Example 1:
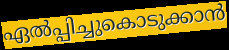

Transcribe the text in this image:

ഏൽപ്പിച്ചുകൊടുക്കാൻ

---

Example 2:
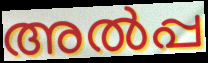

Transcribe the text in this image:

അൽപ്പ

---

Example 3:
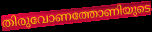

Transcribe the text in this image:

തിരുവോണത്തോണിയുടെ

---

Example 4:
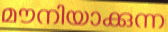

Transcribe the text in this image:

മൗനിയാക്കുന്ന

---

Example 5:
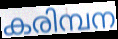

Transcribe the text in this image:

കരിമ്പന